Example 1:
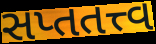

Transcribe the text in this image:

સપ્તતત્ત્વ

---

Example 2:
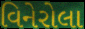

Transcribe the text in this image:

વિનેરોલા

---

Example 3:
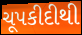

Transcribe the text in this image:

ચૂપકીદીથી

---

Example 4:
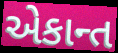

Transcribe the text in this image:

એકાન્ત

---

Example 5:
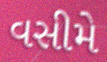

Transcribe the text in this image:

વસીમે